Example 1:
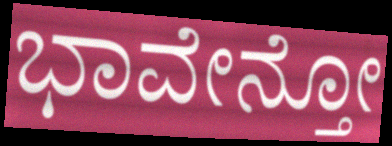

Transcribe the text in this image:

ಭಾವೇನ್ತೋ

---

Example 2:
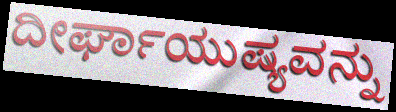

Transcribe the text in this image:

ದೀರ್ಘಾಯುಷ್ಯವನ್ನು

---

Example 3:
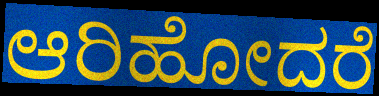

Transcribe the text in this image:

ಆರಿಹೋದರೆ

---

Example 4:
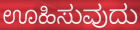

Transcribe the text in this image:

ಊಹಿಸುವುದು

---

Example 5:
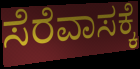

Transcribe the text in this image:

ಸೆರೆವಾಸಕ್ಕೆ